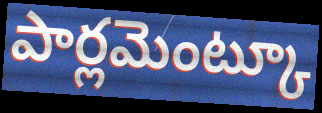
పార్లమెంట్కూ